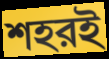
শহরই